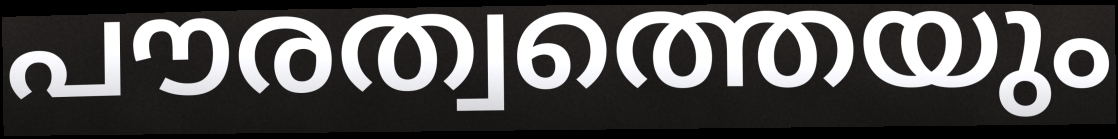
പൗരത്വത്തെയും